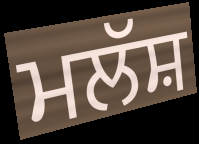
ਮਲੱਸ਼